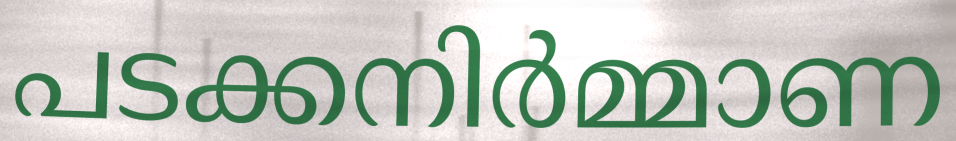
പടക്കനിർമ്മാണ